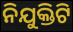
ନିଯୁକ୍ତିଟି